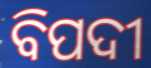
ବିପଦୀ